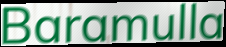
Baramulla